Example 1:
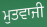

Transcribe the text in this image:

ਮੁਤਵਾਜੀ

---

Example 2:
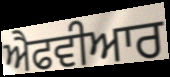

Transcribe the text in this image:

ਐਫਵੀਆਰ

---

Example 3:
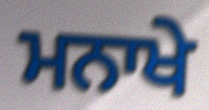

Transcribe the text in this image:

ਮਨਾਖੇ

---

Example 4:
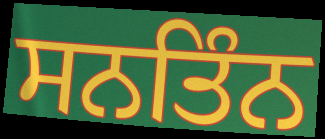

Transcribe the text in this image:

ਸਨਤਿੰਨ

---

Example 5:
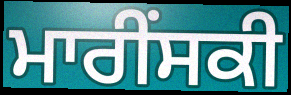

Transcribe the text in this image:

ਮਾਰੀੰਸਕੀ